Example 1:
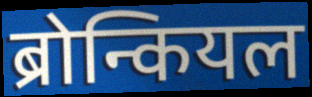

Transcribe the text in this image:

ब्रोन्कियल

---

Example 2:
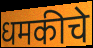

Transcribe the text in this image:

धमकीचे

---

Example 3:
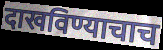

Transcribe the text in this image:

दाखविण्याचाच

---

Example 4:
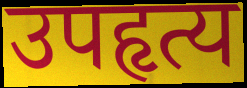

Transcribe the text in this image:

उपहृत्य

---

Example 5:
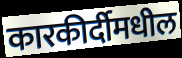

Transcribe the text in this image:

कारकीर्दीमधील